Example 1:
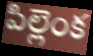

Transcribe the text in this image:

పిల్లెంక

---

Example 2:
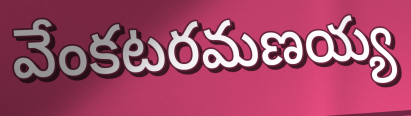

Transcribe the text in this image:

వేంకటరమణయ్య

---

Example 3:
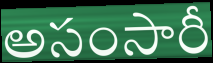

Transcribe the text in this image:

అసంసారీ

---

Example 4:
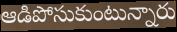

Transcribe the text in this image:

ఆడిపోసుకుంటున్నారు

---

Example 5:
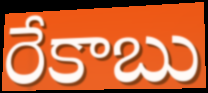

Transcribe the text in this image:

రేకాబు